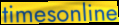
timesonline